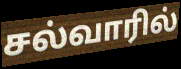
சல்வாரில்